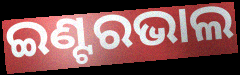
ଇଣ୍ଟରଭାଲ